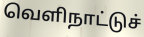
வெளிநாட்டுச்